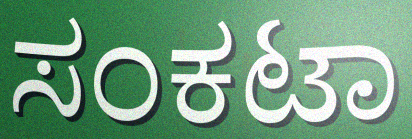
ಸಂಕಟಾ